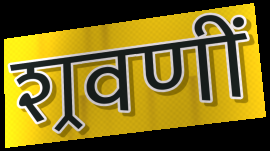
श्रवणीं